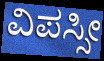
ವಿಪಸ್ಸೀ